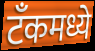
टॅंकमध्ये